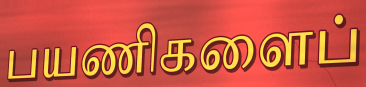
பயணிகளைப்